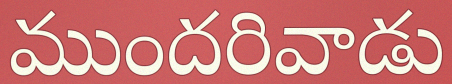
ముందరివాడు